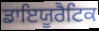
ਡਾਇਯੂਰੈਟਿਕ